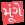
મૂંગે